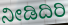
ನೀಡಿದಿರಿ